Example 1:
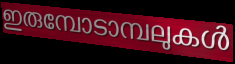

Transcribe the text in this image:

ഇരുമ്പോടാമ്പലുകൾ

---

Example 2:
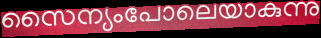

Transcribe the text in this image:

സൈന്യംപോലെയാകുന്നു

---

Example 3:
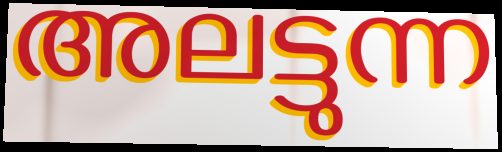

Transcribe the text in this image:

അലട്ടുന്ന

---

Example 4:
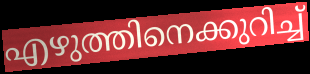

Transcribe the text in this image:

എഴുത്തിനെക്കുറിച്ച്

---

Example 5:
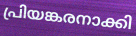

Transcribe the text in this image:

പ്രിയങ്കരനാക്കി